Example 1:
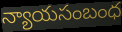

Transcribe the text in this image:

న్యాయసంబంధ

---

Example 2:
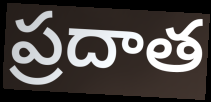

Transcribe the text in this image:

ప్రదాత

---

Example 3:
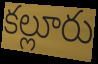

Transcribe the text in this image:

కల్లూరు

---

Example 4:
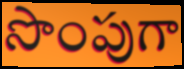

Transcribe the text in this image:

సొంపుగా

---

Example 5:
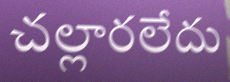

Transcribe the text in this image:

చల్లారలేదు